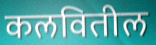
कलवितील